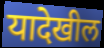
यादेखील